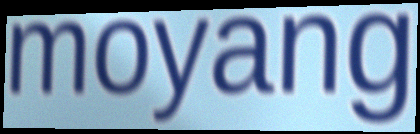
moyang